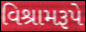
વિશ્રામરૂપે